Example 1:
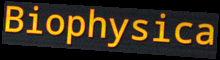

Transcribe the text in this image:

Biophysica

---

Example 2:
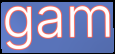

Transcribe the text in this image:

gam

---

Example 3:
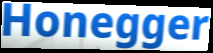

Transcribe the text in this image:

Honegger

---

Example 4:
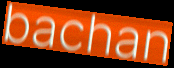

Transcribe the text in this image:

bachan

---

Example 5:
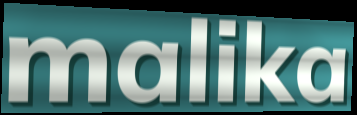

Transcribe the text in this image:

malika